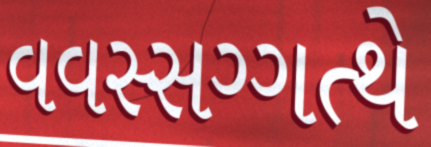
વવસ્સગ્ગત્થે